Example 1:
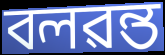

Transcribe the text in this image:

বলৱন্ত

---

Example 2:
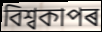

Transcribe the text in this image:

বিশ্বকাপৰ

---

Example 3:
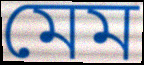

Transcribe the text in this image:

মেম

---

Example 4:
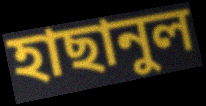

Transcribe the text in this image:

হাছানুল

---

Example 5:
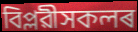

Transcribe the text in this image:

বিপ্লৱীসকলৰ